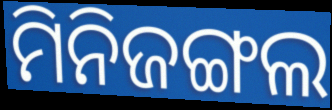
ମିନିଜଙ୍ଗଲ